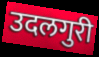
उदलगुरी